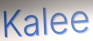
Kalee